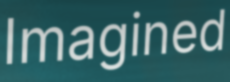
Imagined